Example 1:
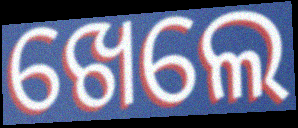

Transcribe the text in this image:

ଖେଲେ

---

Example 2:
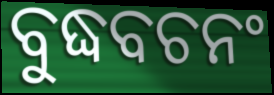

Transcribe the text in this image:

ବୁଦ୍ଧବଚନଂ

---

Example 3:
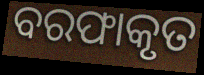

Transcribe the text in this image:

ବରଫାକୃତ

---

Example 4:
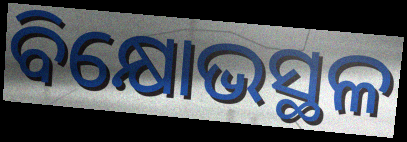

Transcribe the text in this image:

ବିକ୍ଷୋଭସ୍ଥଳ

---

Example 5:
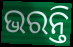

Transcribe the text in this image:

ଭରନ୍ତି